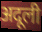
अदूली